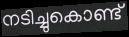
നടിച്ചുകൊണ്ട്